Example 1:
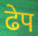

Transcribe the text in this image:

ढेप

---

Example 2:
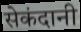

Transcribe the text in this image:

सेकंदानी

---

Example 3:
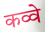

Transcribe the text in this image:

कव्वे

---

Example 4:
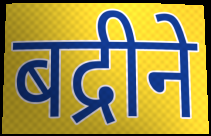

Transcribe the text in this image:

बद्रीने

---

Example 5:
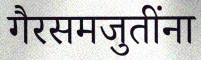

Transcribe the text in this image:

गैरसमजुतींना